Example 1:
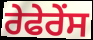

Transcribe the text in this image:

ਰੇਫੇਰੇਂਸ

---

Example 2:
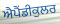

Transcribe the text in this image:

ਐਪੈਂਡੀਕੁਲਰ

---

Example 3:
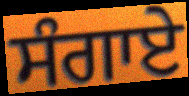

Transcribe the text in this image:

ਸੰਗਾਏ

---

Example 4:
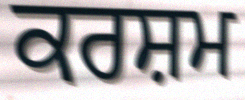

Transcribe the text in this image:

ਕਰਸ਼ਮ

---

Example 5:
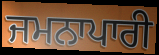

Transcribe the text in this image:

ਜਮਨਾਪਾਰੀ